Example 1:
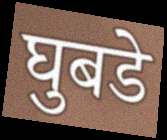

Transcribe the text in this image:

घुबडे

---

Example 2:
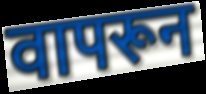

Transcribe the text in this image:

वापरून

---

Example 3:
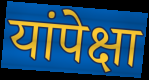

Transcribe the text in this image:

यांपेक्षा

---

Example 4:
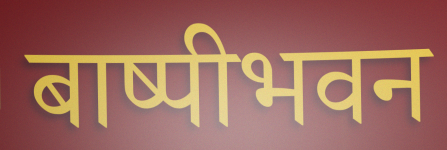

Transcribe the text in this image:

बाष्पीभवन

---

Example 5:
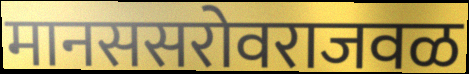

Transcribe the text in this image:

मानससरोवराजवळ